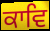
ਕਾਵਿ